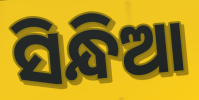
ସିନ୍ଧିଆ